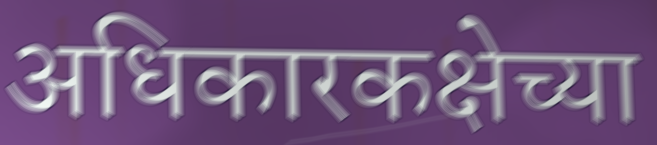
अधिकारकक्षेच्या